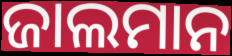
ଜାଲମାନ